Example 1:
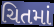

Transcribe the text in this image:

ચિતમાં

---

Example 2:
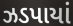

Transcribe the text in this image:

ઝડપાયાં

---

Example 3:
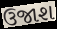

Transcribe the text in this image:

ઉજાશ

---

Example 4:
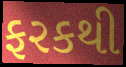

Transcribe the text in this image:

ફરકથી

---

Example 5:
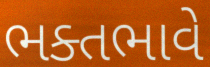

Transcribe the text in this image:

ભક્તભાવે